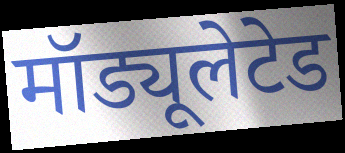
मॉड्यूलेटेड